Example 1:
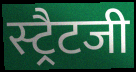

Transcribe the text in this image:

स्‍ट्रैटजी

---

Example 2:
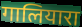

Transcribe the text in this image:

गालियारा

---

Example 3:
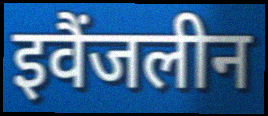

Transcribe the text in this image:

इवैंजलीन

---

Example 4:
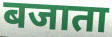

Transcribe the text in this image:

बजाता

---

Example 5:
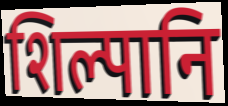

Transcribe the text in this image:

शिल्पानि